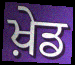
ਖ਼ੇਡ